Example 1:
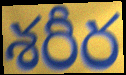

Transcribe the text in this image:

శరీర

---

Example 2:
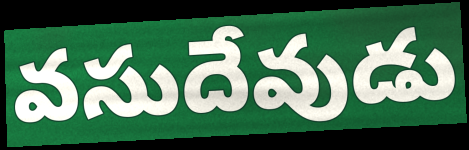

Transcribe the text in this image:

వసుదేవుడు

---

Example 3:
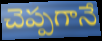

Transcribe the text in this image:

చెప్పగానే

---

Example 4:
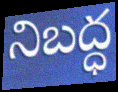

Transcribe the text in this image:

నిబద్ధ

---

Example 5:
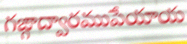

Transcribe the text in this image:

గఙ్గాద్వారముపేయాయ